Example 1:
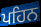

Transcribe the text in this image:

ਪਹਿਨ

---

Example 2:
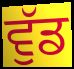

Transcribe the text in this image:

ਵੁੱਡ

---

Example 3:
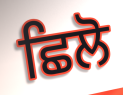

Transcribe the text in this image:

ਛਿਲੋ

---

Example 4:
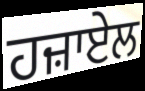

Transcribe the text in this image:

ਹਜ਼ਾਏਲ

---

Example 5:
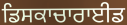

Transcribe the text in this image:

ਡਿਸਕਾਚਾਰਾਈਡ